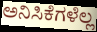
ಅನಿಸಿಕೆಗಳೆಲ್ಲ